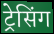
ट्रेसिंग